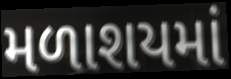
મળાશયમાં